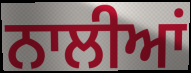
ਨਾਲੀਆਂ